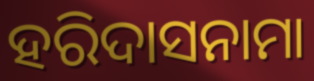
ହରିଦାସନାମା